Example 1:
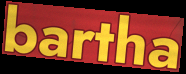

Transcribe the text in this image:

bartha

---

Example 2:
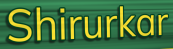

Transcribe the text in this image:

Shirurkar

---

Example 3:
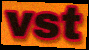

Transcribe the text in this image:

vst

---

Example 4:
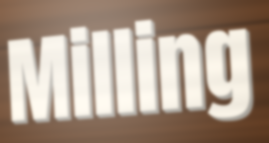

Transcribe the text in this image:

Milling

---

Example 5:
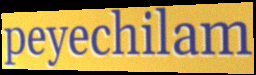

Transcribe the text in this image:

peyechilam